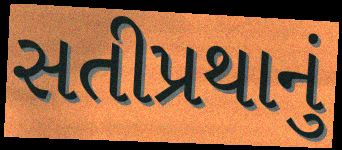
સતીપ્રથાનું